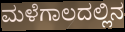
ಮಳೆಗಾಲದಲ್ಲಿನ